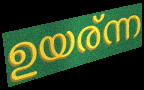
ഉയര്ന്ന